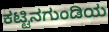
ಕಟ್ಟಿನಗುಂಡಿಯ